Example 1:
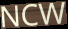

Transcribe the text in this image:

NCW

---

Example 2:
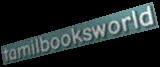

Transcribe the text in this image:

tamilbooksworld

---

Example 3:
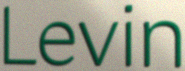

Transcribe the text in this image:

Levin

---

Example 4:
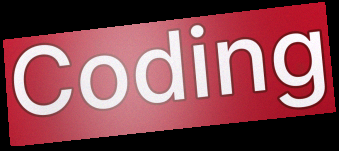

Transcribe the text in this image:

Coding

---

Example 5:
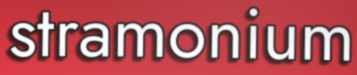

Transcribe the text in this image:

stramonium